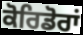
ਕੋਰਿਡੋਰਾਂ